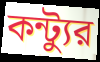
কন্ট্যুর